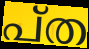
പ്ത